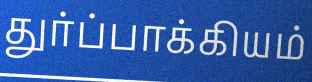
துர்ப்பாக்கியம்